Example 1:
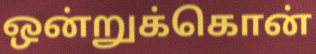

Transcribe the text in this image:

ஒன்றுக்கொன்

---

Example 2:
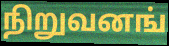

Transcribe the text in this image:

நிறுவனங்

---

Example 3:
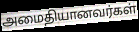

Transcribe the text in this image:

அமைதியானவர்கள்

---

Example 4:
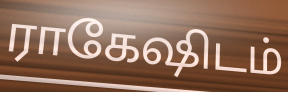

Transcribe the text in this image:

ராகேஷிடம்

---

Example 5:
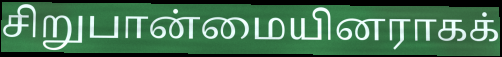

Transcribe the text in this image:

சிறுபான்மையினராகக்